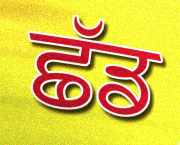
ਛੱਡ